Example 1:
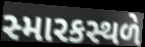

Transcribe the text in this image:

સ્મારકસ્થળે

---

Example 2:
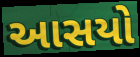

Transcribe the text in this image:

આસયો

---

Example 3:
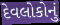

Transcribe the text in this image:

દેવલોકોનું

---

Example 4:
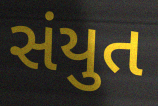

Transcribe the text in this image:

સંયુત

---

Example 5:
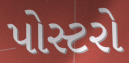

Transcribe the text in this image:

પોસ્ટરો